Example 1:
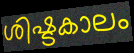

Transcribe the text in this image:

ശിഷ്ടകാലം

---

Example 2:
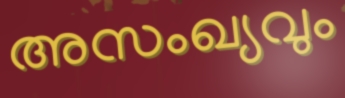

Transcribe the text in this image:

അസംഖ്യവും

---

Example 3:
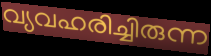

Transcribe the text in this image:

വ്യവഹരിച്ചിരുന്ന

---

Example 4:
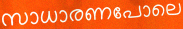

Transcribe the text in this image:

സാധാരണപോലെ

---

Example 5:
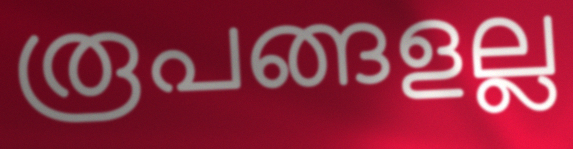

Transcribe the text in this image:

രൂപങ്ങളല്ല